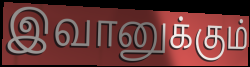
இவானுக்கும்